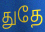
துதே